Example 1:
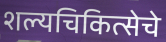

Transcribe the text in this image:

शल्यचिकित्सेचे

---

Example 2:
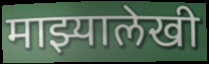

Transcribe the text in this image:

माझ्यालेखी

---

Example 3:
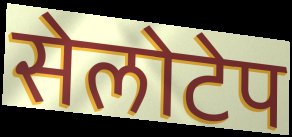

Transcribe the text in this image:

सेलोटेप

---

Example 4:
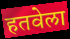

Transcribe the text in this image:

हतवेला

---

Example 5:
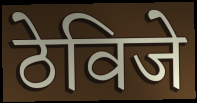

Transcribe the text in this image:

ठेविजे